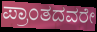
ಪ್ರಾಂತದವರೇ